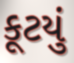
કૂટયું